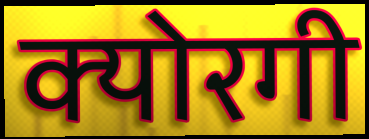
क्योरगी